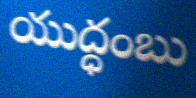
యుద్ధంబు